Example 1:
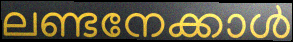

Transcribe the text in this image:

ലണ്ടനേക്കാൾ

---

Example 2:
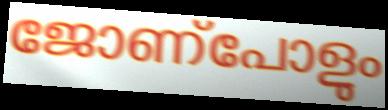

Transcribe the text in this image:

ജോണ്പോളും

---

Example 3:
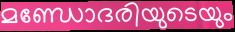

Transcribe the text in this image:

മണ്ഡോദരിയുടെയും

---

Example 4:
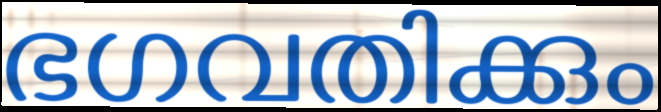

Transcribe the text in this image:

ഭഗവതിക്കും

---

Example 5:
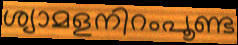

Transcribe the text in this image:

ശ്യാമളനിറംപൂണ്ട